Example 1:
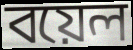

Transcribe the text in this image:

বয়েল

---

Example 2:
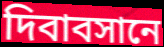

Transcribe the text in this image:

দিবাবসানে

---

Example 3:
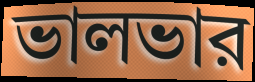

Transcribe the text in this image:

ভালভার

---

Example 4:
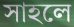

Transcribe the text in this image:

সাহলে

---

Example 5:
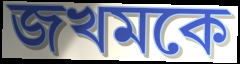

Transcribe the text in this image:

জখমকে